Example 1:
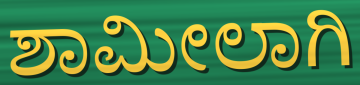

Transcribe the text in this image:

ಶಾಮೀಲಾಗಿ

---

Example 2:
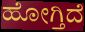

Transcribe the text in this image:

ಹೋಗ್ತಿದೆ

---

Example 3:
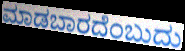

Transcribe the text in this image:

ಮಾಡಬಾರದೆಂಬುದು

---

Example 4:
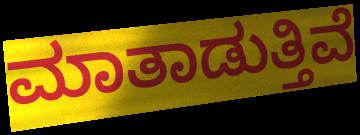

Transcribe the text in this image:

ಮಾತಾಡುತ್ತಿವೆ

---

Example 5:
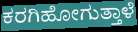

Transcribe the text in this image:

ಕರಗಿಹೋಗುತ್ತಾಳೆ